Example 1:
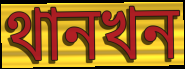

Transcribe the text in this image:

থানখন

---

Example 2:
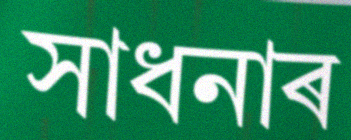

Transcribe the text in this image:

সাধনাৰ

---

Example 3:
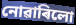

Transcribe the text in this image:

নোৱাৰিলো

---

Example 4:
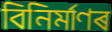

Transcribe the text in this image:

বিনিৰ্মাণৰ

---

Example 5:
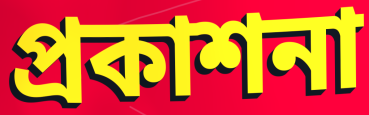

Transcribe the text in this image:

প্ৰকাশনা